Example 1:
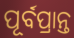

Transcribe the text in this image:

ପୂର୍ବପ୍ରାନ୍ତ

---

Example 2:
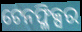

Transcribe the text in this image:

ଟେନଫ୍ଳିକ୍ସର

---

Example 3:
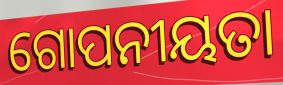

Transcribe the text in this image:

ଗୋପନୀୟତା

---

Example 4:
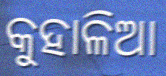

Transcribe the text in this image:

କୁହାଳିଆ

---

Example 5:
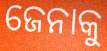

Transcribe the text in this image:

ଜେନାକୁ